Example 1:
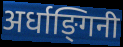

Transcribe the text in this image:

अर्धाङ्गिनी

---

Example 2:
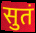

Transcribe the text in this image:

सुतं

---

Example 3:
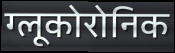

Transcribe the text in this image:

ग्लूकोरोनिक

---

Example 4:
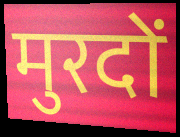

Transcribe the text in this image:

मुरदों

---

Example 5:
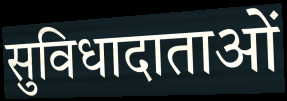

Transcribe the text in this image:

सुविधादाताओं